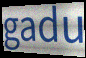
gadu